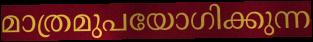
മാത്രമുപയോഗിക്കുന്ന